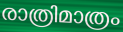
രാത്രിമാത്രം